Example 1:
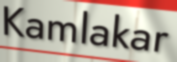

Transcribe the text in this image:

Kamlakar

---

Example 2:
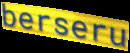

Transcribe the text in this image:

berseru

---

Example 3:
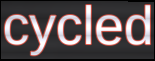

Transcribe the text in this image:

cycled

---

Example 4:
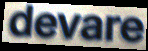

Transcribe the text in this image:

devare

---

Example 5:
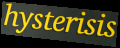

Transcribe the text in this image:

hysterisis